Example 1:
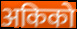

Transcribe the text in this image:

अकिको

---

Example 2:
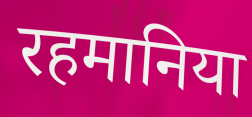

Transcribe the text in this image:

रहमानिया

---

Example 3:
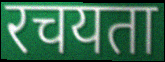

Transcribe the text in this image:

रचयता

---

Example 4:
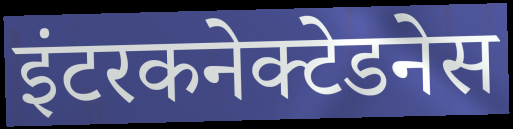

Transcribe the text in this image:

इंटरकनेक्टेडनेस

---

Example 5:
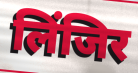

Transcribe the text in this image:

लिंजिर